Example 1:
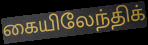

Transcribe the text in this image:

கையிலேந்திக்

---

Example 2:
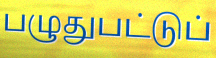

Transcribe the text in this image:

பழுதுபட்டுப்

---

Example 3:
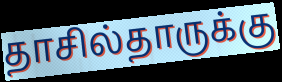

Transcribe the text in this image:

தாசில்தாருக்கு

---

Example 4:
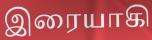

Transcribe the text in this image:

இரையாகி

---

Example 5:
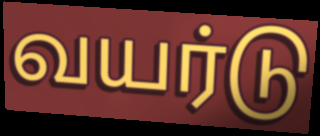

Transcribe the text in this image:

வயர்டு